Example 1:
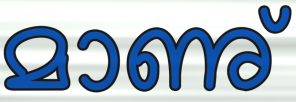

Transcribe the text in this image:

മാണു്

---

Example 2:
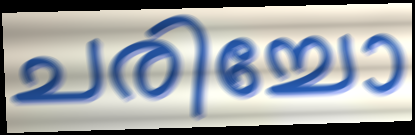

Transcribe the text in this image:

ചരിച്ചോ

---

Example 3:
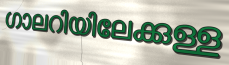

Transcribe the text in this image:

ഗാലറിയിലേക്കുള്ള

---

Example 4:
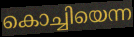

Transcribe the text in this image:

കൊച്ചിയെന്ന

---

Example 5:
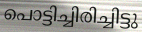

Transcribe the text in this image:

പൊട്ടിച്ചിരിച്ചിട്ടു